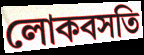
লোকবসতি